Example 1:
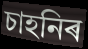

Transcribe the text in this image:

চাহনিৰ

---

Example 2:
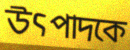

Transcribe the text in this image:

উৎপাদকে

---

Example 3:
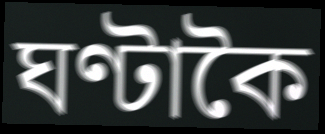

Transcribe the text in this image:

ঘণ্টাকৈ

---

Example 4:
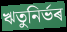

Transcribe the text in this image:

ঋতুনিৰ্ভৰ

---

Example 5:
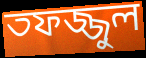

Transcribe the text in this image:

তফজ্জুল